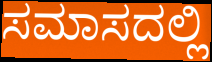
ಸಮಾಸದಲ್ಲಿ